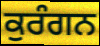
ਕੁਰੰਗਨ